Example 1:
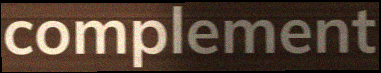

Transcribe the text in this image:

complement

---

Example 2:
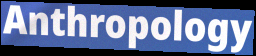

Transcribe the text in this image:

Anthropology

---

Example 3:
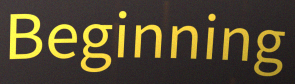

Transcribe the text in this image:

Beginning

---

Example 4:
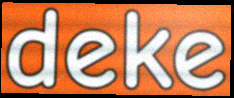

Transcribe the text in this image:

deke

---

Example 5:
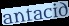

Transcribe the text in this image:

antacid